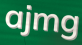
ajmg